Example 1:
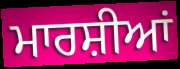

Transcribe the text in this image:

ਮਾਰਸ਼ੀਆਂ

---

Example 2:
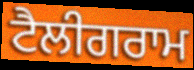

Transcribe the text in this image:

ਟੈਲੀਗਰਾਮ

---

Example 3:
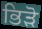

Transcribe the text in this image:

ਭਿੜੋ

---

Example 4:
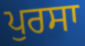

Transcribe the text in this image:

ਪੁਰਸਾ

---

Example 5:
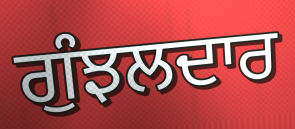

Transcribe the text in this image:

ਗੁੰਝਲਦਾਰ